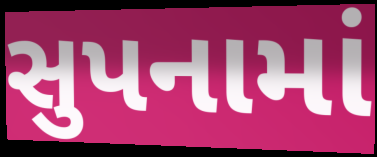
સુપનામાં